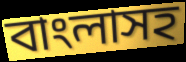
বাংলাসহ